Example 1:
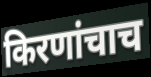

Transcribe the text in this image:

किरणांचाच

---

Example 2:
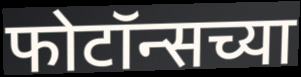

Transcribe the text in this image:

फोटॉन्सच्या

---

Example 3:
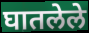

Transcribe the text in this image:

घातलेले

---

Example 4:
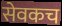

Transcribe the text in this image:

सेवकच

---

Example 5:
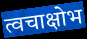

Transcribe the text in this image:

त्वचाक्षोभ